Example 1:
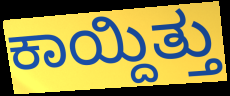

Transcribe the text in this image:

ಕಾಯ್ದಿತ್ತು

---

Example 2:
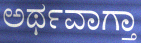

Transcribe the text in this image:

ಅರ್ಥವಾಗ್ತಾ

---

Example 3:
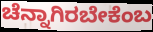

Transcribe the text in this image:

ಚೆನ್ನಾಗಿರಬೇಕೆಂಬ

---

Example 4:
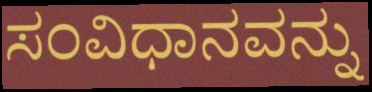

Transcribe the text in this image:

ಸಂವಿಧಾನವನ್ನು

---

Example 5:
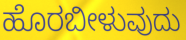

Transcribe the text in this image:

ಹೊರಬೀಳುವುದು